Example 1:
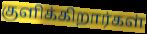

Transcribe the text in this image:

குளிக்கிறார்கள்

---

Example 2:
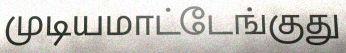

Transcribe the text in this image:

முடியமாட்டேங்குது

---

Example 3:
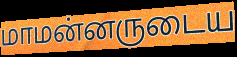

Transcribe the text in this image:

மாமன்னருடைய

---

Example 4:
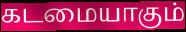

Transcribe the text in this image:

கடமையாகும்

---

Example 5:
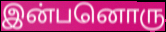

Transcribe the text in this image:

இன்பனொரு